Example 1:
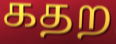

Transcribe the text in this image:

கதற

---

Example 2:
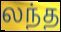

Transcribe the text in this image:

லந்த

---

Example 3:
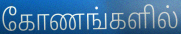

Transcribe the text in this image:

கோணங்களில்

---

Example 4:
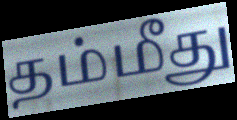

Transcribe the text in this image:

தம்மீது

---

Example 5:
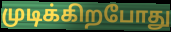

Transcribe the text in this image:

முடிக்கிறபோது